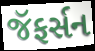
જૅફર્સન